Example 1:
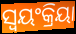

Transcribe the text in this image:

ସ୍ବୟଂକ୍ରିୟା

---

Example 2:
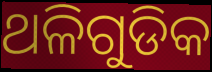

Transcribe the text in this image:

ଥଳିଗୁଡିକ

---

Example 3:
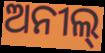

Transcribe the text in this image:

ଅନୀଲ୍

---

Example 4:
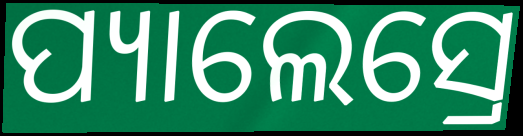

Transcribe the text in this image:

ପ୍ୟାଲେସ୍ରେ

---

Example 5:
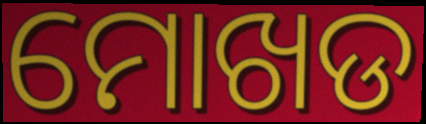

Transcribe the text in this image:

ମୋଖଡ